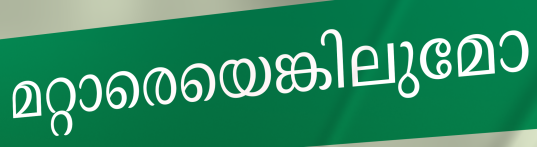
മറ്റാരെയെങ്കിലുമോ